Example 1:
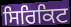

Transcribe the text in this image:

ਸਿਰਿਕਿਟ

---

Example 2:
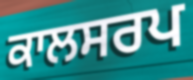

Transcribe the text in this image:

ਕਾਲਸਰਪ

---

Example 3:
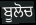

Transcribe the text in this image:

ਬੂਲੋਚ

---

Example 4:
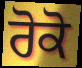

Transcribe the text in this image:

ਰੋਕੋ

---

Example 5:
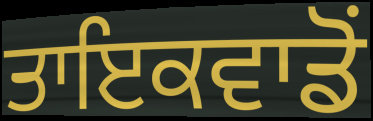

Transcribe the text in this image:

ਤਾਇਕਵਾਡੋਂ